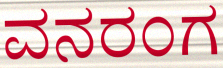
ವನರಂಗ